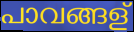
പാവങ്ങള്